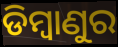
ଡିମ୍ବାଣୁର